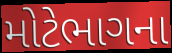
મોટેભાગના